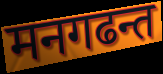
मनगढन्त